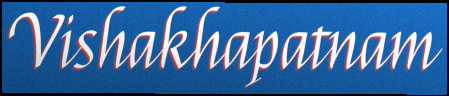
Vishakhapatnam